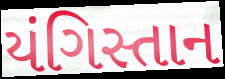
યંગિસ્તાન